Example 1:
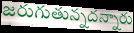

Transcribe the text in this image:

జరుగుతున్నదన్నారు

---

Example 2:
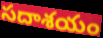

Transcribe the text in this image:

సదాశయం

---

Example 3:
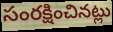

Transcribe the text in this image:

సంరక్షించినట్లు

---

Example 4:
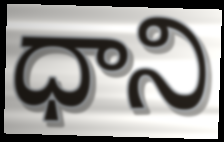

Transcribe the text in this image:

ధాని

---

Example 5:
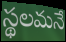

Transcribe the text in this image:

స్థలమనే